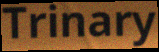
Trinary